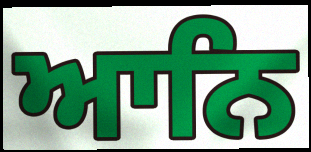
ਆਨਿ